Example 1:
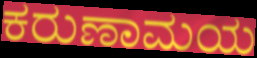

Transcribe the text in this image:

ಕರುಣಾಮಯ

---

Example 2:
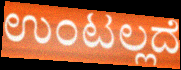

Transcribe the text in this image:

ಉಂಟಲ್ಲದೆ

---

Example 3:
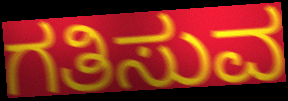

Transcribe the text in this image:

ಗತಿಸುವ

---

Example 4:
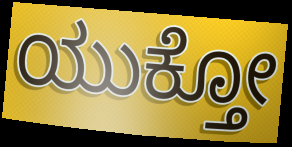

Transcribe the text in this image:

ಯುಕ್ತೋ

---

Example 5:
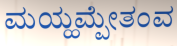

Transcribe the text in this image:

ಮಯ್ಹಮ್ಪೇತಂವ